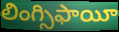
లింగ్సిఫాయీ